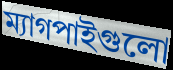
ম্যাগপাইগুলো